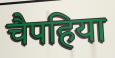
चैपहिया